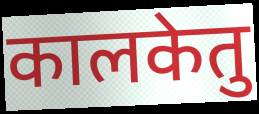
कालकेतु